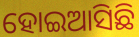
ହୋଇଆସିଛି